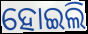
ହୋଇଲି